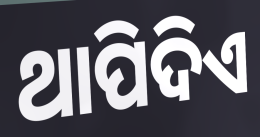
ଥାପିଦିଏ